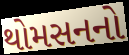
થોમસનનો